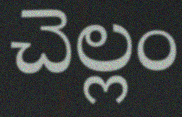
చెల్లం